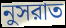
নুসরাত